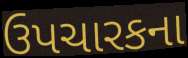
ઉપચારકના